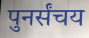
पुनर्संचय